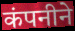
कंपनीने